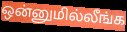
ஒன்னுமில்லீங்க